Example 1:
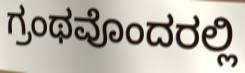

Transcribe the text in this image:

ಗ್ರಂಥವೊಂದರಲ್ಲಿ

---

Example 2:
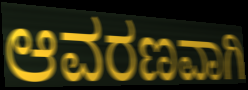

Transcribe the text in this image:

ಆವರಣವಾಗಿ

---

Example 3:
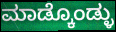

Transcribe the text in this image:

ಮಾಡ್ಕೊಂಡ್ಳು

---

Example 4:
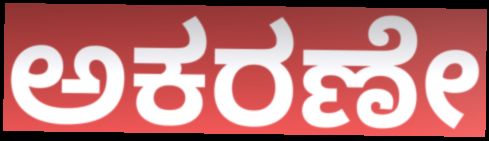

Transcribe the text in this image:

ಅಕರಣೇ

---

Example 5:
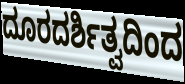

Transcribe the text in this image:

ದೂರದರ್ಶಿತ್ವದಿಂದ